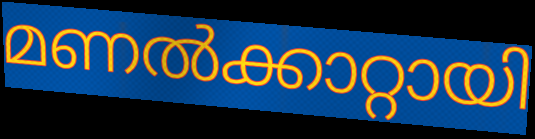
മണൽക്കാറ്റായി